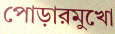
পোড়ারমুখো